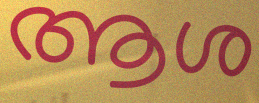
ആശ